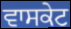
ਵਾਸਕੇਟ